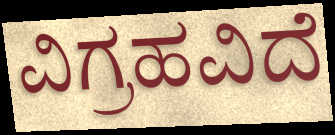
ವಿಗ್ರಹವಿದೆ